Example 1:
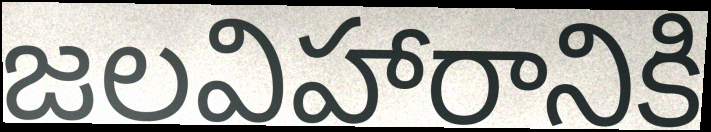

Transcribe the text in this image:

జలవిహారానికి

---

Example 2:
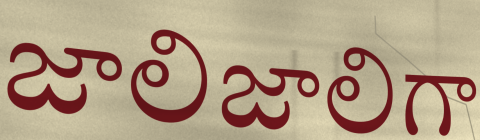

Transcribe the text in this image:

జాలిజాలిగా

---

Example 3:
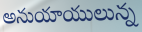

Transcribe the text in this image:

అనుయాయులున్న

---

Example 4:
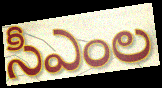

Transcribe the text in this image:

సీఎంల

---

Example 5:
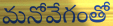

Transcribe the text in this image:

మనోవేగంతో